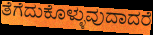
ತೆಗೆದುಕೊಳ್ಳುವುದಾದರೆ